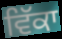
ਵਿੱਕਾ